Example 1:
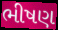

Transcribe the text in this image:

ભીષણ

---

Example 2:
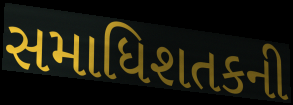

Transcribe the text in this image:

સમાધિશતકની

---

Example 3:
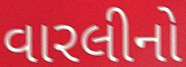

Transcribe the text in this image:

વારલીનો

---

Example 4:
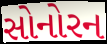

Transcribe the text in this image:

સોનોરન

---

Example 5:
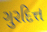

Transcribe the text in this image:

ગુરદિત્ત